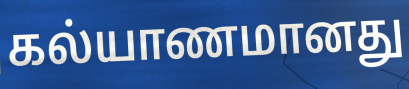
கல்யாணமானது